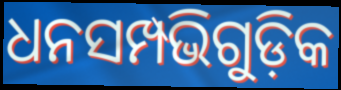
ଧନସମ୍ପଭିଗୁଡ଼ିକ